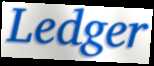
Ledger